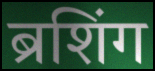
ब्रशिंग